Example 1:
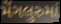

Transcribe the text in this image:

મેંગલુરુમાં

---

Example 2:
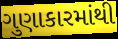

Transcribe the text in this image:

ગુણાકારમાંથી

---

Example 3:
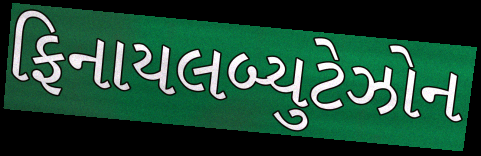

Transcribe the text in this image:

ફિનાયલબ્યુટેઝોન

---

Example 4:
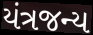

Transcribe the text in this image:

યંત્રજન્ય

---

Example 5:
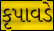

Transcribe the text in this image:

કૃપાવડે